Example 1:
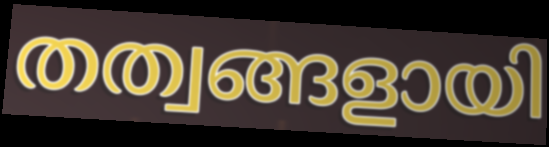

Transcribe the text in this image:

തത്വങ്ങളായി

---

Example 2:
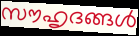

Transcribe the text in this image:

സൗഹൃദങ്ങൾ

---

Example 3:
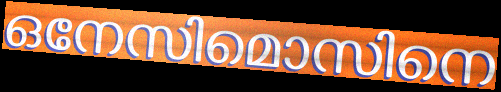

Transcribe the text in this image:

ഒനേസിമൊസിനെ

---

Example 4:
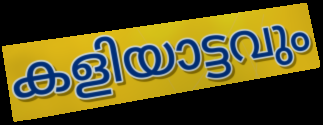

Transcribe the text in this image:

കളിയാട്ടവും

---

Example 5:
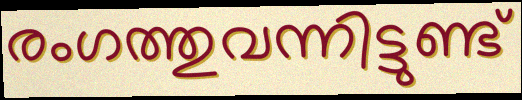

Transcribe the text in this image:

രംഗത്തുവന്നിട്ടുണ്ട്